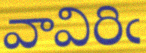
వావిరిఁ